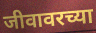
जीवावरच्या